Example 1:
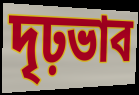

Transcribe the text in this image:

দৃঢ়ভাব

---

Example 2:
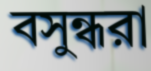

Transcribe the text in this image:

বসুন্ধরা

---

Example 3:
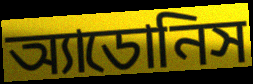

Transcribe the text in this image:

অ্যাডোনিস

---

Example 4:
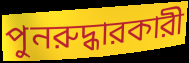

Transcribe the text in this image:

পুনরুদ্ধারকারী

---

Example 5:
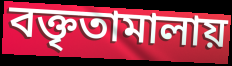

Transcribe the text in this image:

বক্তৃতামালায়